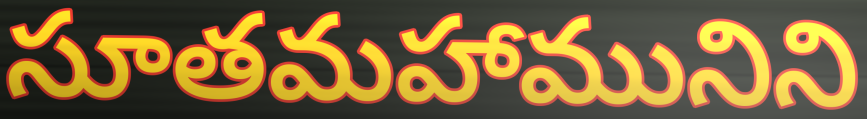
సూతమహామునిని